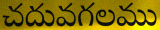
చదువగలము